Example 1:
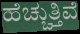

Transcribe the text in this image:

ಹೆಚ್ಚುತ್ತಿವೆ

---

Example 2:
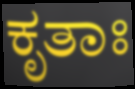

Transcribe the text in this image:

ಕೃತಾಃ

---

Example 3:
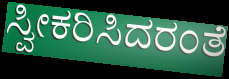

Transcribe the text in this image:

ಸ್ವೀಕರಿಸಿದರಂತೆ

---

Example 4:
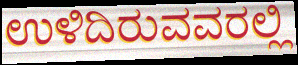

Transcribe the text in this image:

ಉಳಿದಿರುವವರಲ್ಲಿ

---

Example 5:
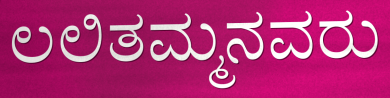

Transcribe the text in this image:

ಲಲಿತಮ್ಮನವರು